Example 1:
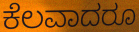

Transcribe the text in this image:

ಕೆಲವಾದರೂ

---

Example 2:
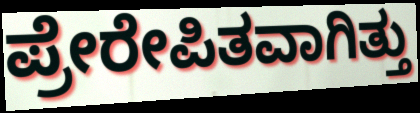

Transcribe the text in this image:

ಪ್ರೇರೇಪಿತವಾಗಿತ್ತು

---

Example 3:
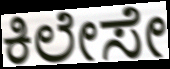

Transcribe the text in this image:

ಕಿಲೇಸೇ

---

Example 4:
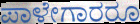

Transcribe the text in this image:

ಪಾಳೇಗಾರರೂ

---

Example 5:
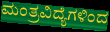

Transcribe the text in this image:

ಮಂತ್ರವಿದ್ಯೆಗಳಿಂದ